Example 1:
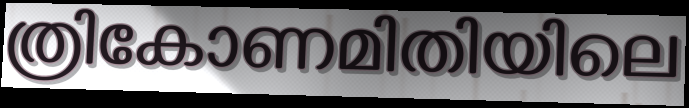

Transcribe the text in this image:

ത്രികോണമിതിയിലെ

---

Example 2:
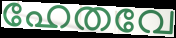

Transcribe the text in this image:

ഹേതവേ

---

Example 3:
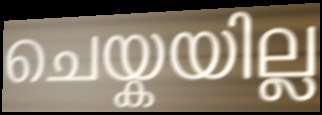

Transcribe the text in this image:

ചെയ്കയില്ല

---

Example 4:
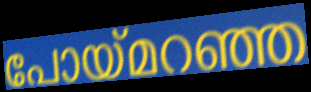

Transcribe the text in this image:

പോയ്മറഞ്ഞ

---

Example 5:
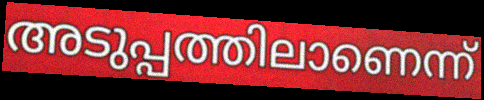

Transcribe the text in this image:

അടുപ്പത്തിലാണെന്ന്